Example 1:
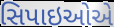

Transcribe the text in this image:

સિપાઇઓએ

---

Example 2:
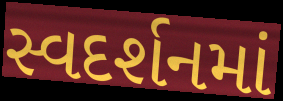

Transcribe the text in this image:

સ્વદર્શનમાં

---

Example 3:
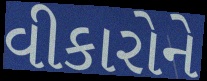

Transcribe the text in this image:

વીકારોને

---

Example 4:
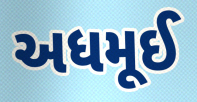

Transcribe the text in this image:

અધમૂઈ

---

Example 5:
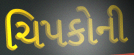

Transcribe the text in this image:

ચિપકોની